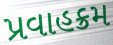
પ્રવાહક્રમ